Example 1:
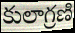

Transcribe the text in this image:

కులాగ్రణి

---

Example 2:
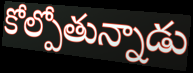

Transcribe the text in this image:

కోల్పోతున్నాడు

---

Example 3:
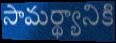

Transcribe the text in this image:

సామర్థ్యానికి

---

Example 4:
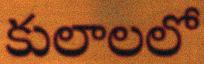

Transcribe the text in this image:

కులాలలో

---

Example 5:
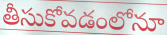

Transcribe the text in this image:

తీసుకోవడంలోనూ